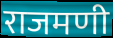
राजमणी